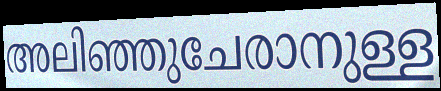
അലിഞ്ഞുചേരാനുള്ള